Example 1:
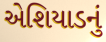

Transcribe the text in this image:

એશિયાડનું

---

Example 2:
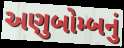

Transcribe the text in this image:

અણુબોમ્બનું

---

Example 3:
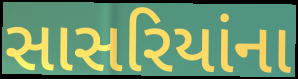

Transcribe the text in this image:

સાસરિયાંના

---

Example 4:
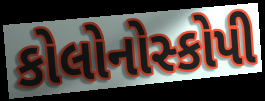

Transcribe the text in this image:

કોલોનોસ્કોપી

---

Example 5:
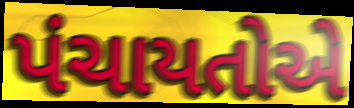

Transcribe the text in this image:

પંચાયતોએ